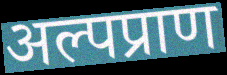
अल्पप्राण